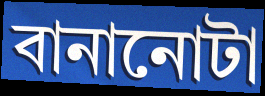
বানানোটা